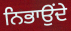
ਨਿਭਾਉਂਦੇ